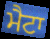
ਮੈਟਾ